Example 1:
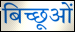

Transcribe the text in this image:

बिच्छूओं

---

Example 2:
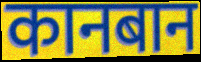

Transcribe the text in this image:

कानबान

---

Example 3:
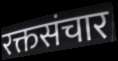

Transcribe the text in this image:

रक्तसंचार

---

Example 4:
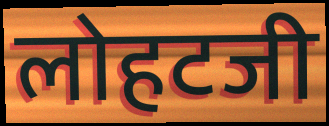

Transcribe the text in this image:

लोहटजी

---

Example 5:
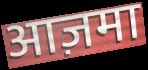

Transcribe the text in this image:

आज़मा